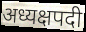
अध्यक्षपदी